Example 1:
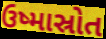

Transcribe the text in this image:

ઉષ્માસ્રોત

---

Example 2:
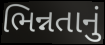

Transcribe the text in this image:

ભિન્નતાનું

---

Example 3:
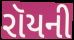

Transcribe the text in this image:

રૉયની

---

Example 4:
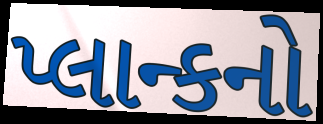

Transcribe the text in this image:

પ્લાન્કનો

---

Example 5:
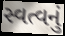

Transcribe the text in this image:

સ્વત્વનું